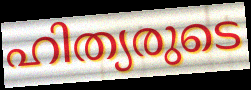
ഹിത്യരുടെ